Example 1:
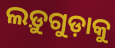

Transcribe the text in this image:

ଲଡ଼ୁଗୁଡ଼ାକୁ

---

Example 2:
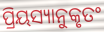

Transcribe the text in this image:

ପ୍ରିୟସ୍ୟାନୁକୃତଂ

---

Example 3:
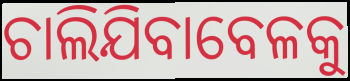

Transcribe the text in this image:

ଚାଲିଯିବାବେଳକୁ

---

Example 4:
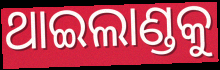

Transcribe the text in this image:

ଥାଇଲାଣ୍ଡକୁ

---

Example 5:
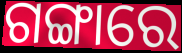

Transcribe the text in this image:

ଗଙ୍ଗାରେ